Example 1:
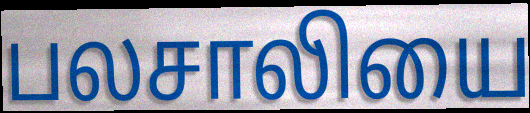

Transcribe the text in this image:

பலசாலியை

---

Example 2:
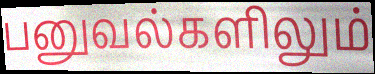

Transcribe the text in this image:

பனுவல்களிலும்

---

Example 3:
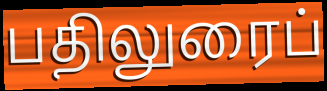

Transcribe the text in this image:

பதிலுரைப்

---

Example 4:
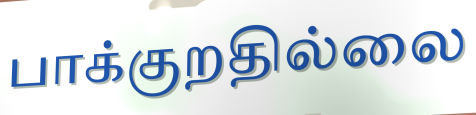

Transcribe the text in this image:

பாக்குறதில்லை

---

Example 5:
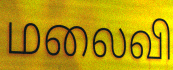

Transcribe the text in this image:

மலைவி